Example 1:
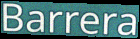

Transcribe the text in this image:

Barrera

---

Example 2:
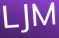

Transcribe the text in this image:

LJM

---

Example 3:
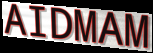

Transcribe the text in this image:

AIDMAM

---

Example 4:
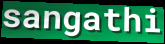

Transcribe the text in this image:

sangathi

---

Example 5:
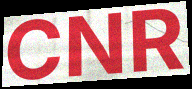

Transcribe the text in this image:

CNR